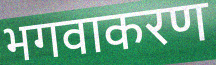
भगवाकरण